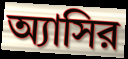
অ্যাসির